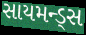
સાયમન્ડ્સ